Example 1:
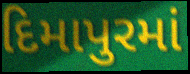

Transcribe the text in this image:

દિમાપુરમાં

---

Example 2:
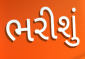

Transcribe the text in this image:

ભરીશું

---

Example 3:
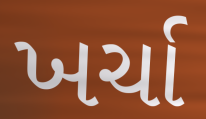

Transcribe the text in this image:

ખર્ચા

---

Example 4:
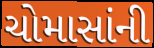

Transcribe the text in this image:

ચોમાસાંની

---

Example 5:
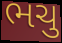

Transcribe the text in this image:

ભચુ